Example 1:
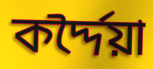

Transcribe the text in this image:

কৰ্দ্দৈয়া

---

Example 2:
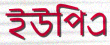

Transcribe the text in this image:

ইউপিএ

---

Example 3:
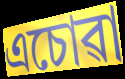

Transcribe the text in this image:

এচোৱা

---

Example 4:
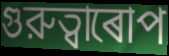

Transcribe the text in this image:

গুৰুত্বাৰোপ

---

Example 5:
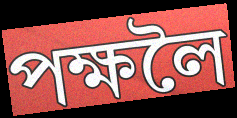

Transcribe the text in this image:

পক্ষলৈ